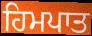
ਹਿਮਪਾਤ